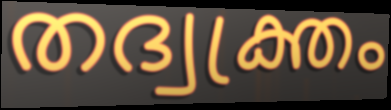
തദ്വക്ത്രം